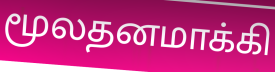
மூலதனமாக்கி